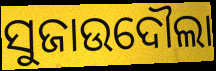
ସୁଜାଉଦୌଲା